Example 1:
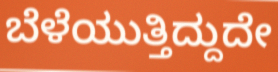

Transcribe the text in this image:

ಬೆಳೆಯುತ್ತಿದ್ದುದೇ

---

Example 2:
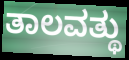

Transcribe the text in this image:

ತಾಲವತ್ಥು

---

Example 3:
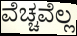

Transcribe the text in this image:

ವೆಚ್ಚವೆಲ್ಲ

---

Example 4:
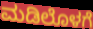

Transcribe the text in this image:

ಮಡಿಲೊಳಗೆ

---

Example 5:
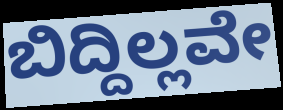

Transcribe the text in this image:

ಬಿದ್ದಿಲ್ಲವೇ